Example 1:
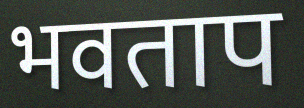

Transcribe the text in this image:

भवताप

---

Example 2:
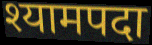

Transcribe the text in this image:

श्यामपदा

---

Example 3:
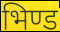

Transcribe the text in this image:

भिण्ड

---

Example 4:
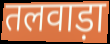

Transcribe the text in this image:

तलवाड़ा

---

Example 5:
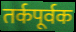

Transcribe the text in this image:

तर्कपूर्वक